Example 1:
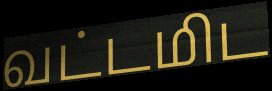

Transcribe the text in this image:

வட்டமிட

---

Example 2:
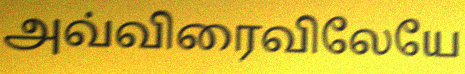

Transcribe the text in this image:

அவ்விரைவிலேயே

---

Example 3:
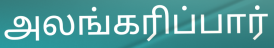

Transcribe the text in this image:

அலங்கரிப்பார்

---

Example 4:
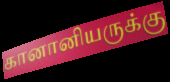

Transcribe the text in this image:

கானானியருக்கு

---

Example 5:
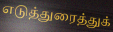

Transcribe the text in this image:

எடுத்துரைத்துக்